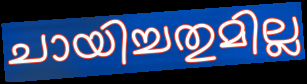
ചായിച്ചതുമില്ല